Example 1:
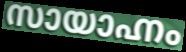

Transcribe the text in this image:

സായാഹ്നം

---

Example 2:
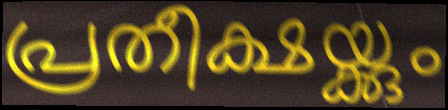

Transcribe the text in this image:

പ്രതീക്ഷയ്ക്കും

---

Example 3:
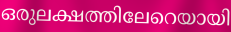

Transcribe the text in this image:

ഒരുലക്ഷത്തിലേറെയായി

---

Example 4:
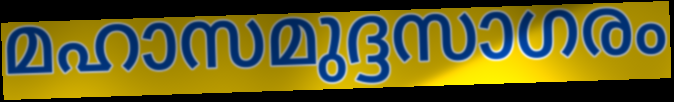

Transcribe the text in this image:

മഹാസമുദ്ദസാഗരം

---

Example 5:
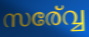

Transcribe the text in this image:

സര്വ്വേ